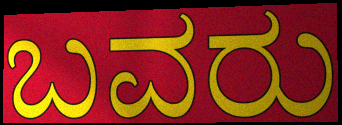
ಬವರು